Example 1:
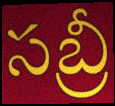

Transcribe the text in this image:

సబ్రీ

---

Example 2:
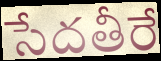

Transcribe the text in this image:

సేదతీరే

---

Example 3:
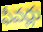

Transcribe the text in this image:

ఫీవర్లు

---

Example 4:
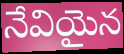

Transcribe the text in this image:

నేవియైన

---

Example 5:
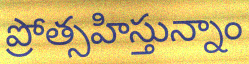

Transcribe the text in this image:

ప్రోత్సహిస్తున్నాం